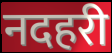
नदहरी